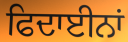
ਫਿਦਾਈਨਾਂ